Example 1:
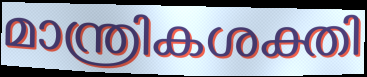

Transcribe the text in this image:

മാന്ത്രികശക്തി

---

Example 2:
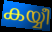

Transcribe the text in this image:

കയ്യീ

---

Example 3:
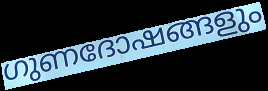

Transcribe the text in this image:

ഗുണദോഷങ്ങളും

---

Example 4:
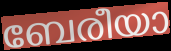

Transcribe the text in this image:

ബേരീയാ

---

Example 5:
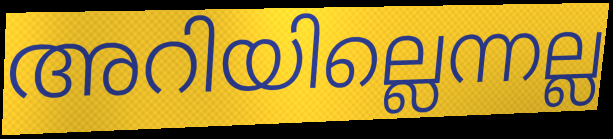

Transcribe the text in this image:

അറിയില്ലെന്നല്ല